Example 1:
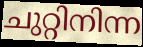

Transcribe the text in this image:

ചുറ്റിനിന്ന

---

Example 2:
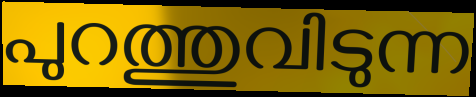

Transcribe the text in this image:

പുറത്തുവിടുന്ന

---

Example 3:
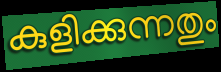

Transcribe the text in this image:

കുളിക്കുന്നതും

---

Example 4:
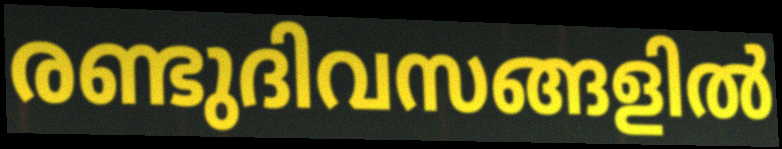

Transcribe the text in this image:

രണ്ടുദിവസങ്ങളിൽ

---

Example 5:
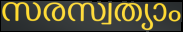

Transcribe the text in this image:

സരസ്വത്യാം